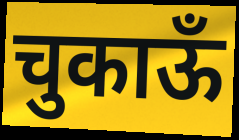
चुकाऊँ